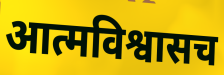
आत्मविश्वासच